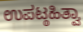
ಉಪಟ್ಠಹಿತ್ವಾ